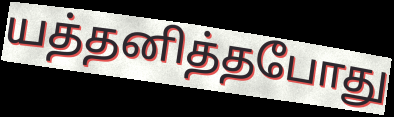
யத்தனித்தபோது